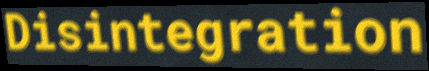
Disintegration